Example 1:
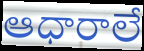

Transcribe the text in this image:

ఆధారాలే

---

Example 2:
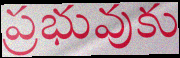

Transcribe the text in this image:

ప్రభువుకు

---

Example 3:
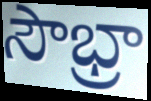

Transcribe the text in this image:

సౌభ్రా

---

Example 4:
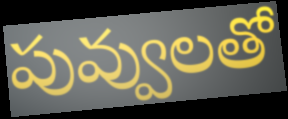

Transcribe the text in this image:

పువ్వులతో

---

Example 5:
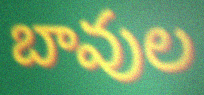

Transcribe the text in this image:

బావుల